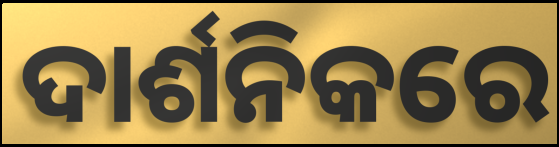
ଦାର୍ଶନିକରେ